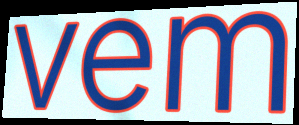
vem